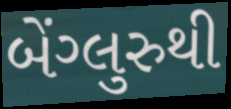
બેંગ્લુરુથી